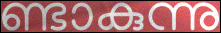
ണ്ടാകുന്നു